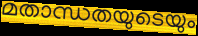
മതാന്ധതയുടെയും